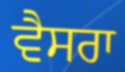
ਵੈਸਰਾ